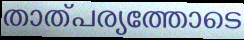
താത്പര്യത്തോടെ